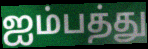
ஐம்பத்து